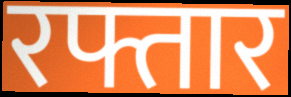
रफ्‍तार